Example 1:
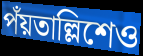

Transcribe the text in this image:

পঁয়তাল্লিশেও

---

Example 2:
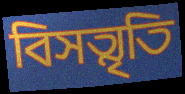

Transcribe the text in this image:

বিসত্মৃতি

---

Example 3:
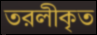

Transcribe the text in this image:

তরলীকৃত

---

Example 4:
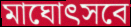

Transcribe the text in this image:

মাঘোৎসবে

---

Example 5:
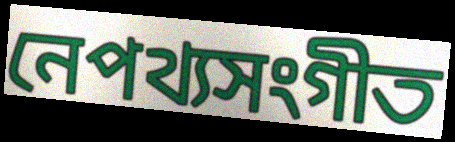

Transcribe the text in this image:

নেপথ্যসংগীত